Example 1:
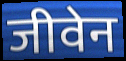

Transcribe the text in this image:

जीवेन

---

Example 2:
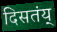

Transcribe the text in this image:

दिसतंय्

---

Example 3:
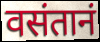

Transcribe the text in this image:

वसंतानं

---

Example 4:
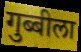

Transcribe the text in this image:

गुब्बीला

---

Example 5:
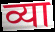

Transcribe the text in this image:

व्या